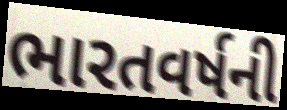
ભારતવર્ષની